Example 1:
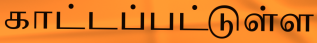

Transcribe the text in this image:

காட்டப்பட்டுள்ள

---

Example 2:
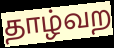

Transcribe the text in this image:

தாழ்வற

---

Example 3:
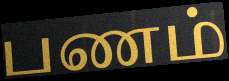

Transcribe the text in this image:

பணம்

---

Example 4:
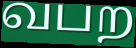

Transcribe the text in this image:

வபற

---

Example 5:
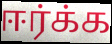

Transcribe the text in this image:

ஈர்க்க